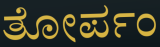
ತೋರ್ಪಂ